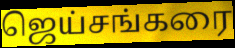
ஜெய்சங்கரை